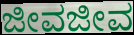
ಜೀವಜೀವ